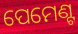
ପେମେଣ୍ଟ